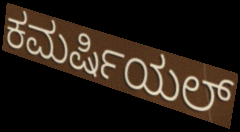
ಕಮರ್ಷಿಯಲ್